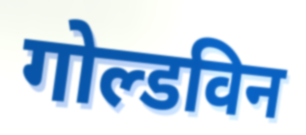
गोल्डविन